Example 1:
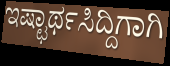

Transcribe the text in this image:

ಇಷ್ಟಾರ್ಥಸಿದ್ದಿಗಾಗಿ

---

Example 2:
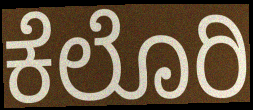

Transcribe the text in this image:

ಕೆಲೊರಿ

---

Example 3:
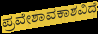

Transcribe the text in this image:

ಪ್ರವೇಶಾವಕಾಶವಿದೆ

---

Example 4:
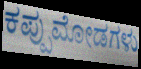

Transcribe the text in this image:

ಕಪ್ಪುಮೋಡಗಳು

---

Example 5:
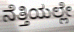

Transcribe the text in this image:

ನೆತ್ತಿಯಲ್ಲೇ